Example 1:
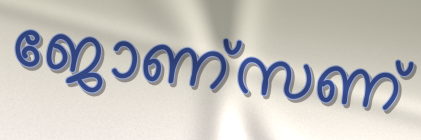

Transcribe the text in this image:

ജോണ്സണ്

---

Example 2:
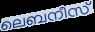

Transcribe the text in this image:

ലെബനീസ്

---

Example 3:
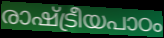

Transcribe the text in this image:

രാഷ്ട്രീയപാഠം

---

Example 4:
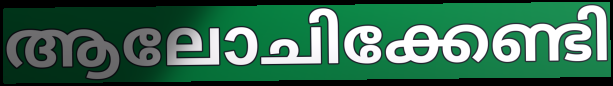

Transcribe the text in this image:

ആലോചിക്കേണ്ടി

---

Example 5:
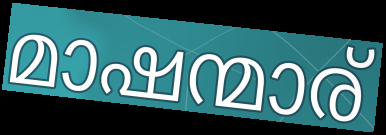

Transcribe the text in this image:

മാഷന്മാര്